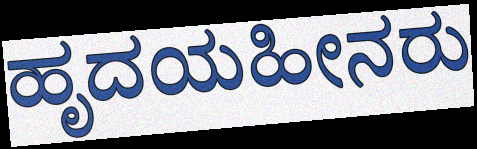
ಹೃದಯಹೀನರು